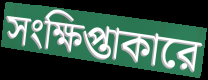
সংক্ষিপ্তাকারে